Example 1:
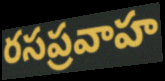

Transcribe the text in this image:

రసప్రవాహ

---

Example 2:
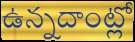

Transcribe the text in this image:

ఉన్నదాంట్లో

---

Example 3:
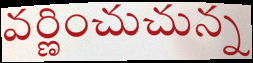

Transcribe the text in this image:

వర్ణించుచున్న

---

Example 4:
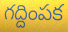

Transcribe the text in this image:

గద్దింపక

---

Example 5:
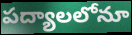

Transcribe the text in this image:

పద్యాలలోనూ